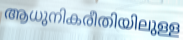
ആധുനികരീതിയിലുള്ള